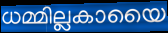
ധമ്മില്ലകായൈ